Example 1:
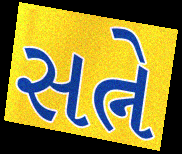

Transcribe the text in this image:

સત્ને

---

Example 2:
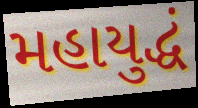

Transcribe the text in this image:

મહાયુદ્ધં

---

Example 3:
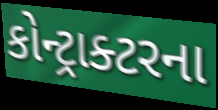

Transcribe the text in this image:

કોન્ટ્રાક્ટરના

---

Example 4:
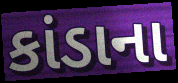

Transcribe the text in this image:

કાંડાના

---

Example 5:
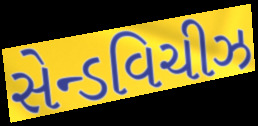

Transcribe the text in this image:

સેન્ડવિચીઝ